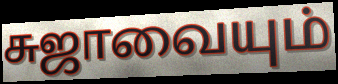
சுஜாவையும்